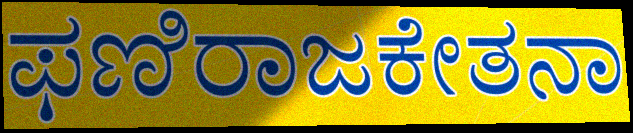
ಫಣಿರಾಜಕೇತನಾ